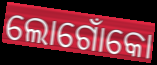
ଲୋଗୋଁକୋ